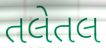
તલેતલ